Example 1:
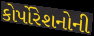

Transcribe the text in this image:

કોર્પોરેશનોની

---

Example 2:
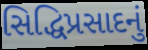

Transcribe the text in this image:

સિદ્ધિપ્રસાદનું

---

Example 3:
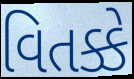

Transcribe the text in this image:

વિતક્કે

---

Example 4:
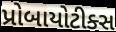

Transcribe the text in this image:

પ્રોબાયોટીક્સ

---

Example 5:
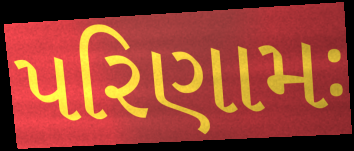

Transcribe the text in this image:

પરિણામઃ